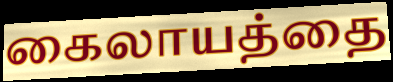
கைலாயத்தை